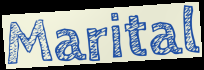
Marital